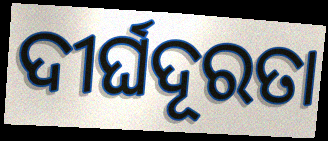
ଦୀର୍ଘଦୂରତା